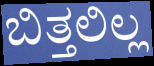
ಬಿತ್ತಲಿಲ್ಲ